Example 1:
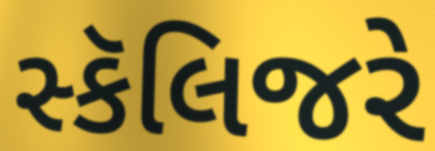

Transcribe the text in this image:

સ્કૅલિજરે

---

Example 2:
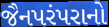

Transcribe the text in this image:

જૈનપરંપરાનો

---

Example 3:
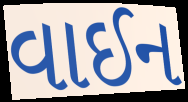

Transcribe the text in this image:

વાઈન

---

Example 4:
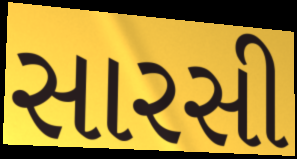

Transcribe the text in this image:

સારસી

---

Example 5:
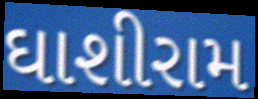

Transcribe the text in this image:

ઘાશીરામ